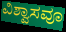
ವಿಶ್ವಾಸವೂ